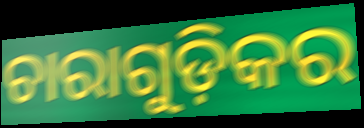
ଚାରାଗୁଡ଼ିକର